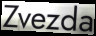
Zvezda